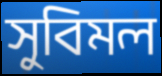
সুবিমল